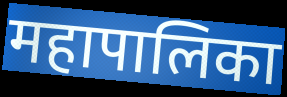
महापालिका